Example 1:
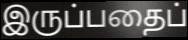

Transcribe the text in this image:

இருப்பதைப்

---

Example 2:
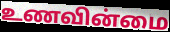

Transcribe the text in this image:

உணவின்மை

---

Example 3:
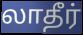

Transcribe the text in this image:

லாதீர்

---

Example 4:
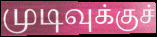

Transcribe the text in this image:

முடிவுக்குச்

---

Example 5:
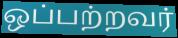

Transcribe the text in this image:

ஒப்பற்றவர்